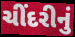
ચીંદરીનું